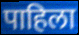
पाहिला